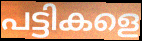
പട്ടികളെ